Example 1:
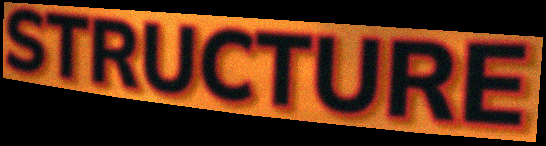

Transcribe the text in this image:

STRUCTURE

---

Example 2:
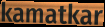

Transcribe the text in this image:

kamatkar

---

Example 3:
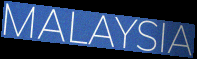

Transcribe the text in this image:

MALAYSIA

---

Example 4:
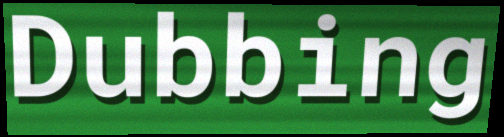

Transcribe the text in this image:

Dubbing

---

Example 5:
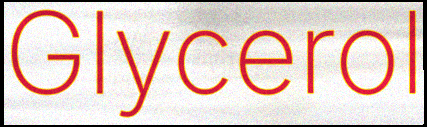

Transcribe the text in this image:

Glycerol